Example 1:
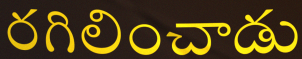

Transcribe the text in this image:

రగిలించాడు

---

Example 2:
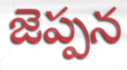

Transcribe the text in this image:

జెప్పన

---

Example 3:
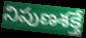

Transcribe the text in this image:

నిపుణశక్తే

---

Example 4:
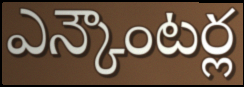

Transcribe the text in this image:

ఎన్కౌంటర్ల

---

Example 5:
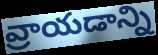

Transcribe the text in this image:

వ్రాయడాన్ని